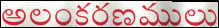
అలంకరణములు